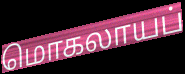
மொகலாயப்